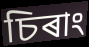
চিৰাং